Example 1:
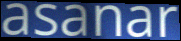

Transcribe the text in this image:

asanar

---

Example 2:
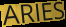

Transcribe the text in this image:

ARIES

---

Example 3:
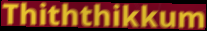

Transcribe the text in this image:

Thiththikkum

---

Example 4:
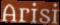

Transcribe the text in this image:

Arisi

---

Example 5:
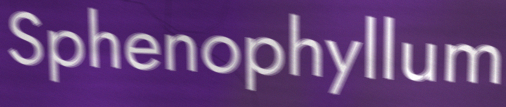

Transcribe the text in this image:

Sphenophyllum